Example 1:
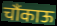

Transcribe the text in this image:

चौंकाऊ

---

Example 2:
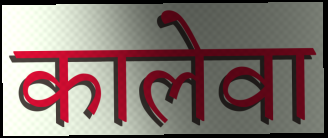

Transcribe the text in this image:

कालेवा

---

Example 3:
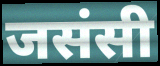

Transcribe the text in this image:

जसंसी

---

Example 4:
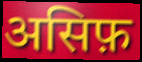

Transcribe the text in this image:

असिफ़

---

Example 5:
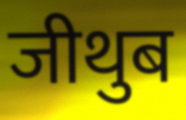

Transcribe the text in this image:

जीथुब